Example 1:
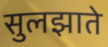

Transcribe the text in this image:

सुलझाते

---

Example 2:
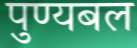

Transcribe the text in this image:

पुण्यबल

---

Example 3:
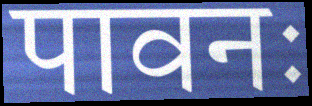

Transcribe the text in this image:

पावनः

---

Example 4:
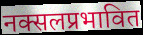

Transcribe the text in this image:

नक्सलप्रभावित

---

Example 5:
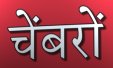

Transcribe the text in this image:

चेंबरों